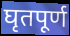
घृतपूर्ण